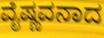
ವೈಷ್ಣವನಾದ